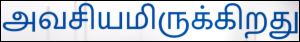
அவசியமிருக்கிறது